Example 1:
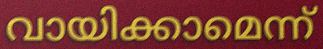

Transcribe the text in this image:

വായിക്കാമെന്ന്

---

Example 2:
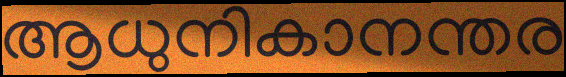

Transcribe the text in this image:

ആധുനികാനന്തര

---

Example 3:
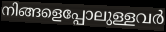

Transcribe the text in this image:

നിങ്ങളെപ്പോലുള്ളവർ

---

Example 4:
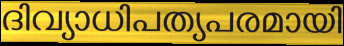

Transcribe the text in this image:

ദിവ്യാധിപത്യപരമായി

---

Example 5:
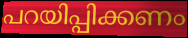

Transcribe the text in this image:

പറയിപ്പിക്കണം